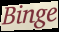
Binge